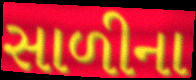
સાળીના